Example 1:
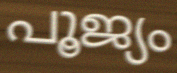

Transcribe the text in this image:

പൂജ്യം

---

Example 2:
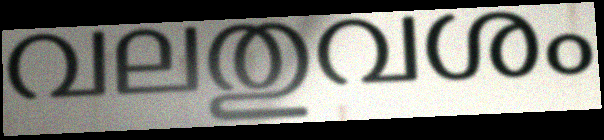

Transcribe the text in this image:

വലതുവശം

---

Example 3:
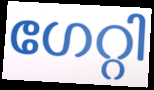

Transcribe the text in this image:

ഗേറ്റി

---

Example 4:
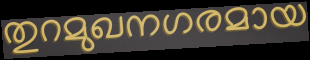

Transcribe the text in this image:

തുറമുഖനഗരമായ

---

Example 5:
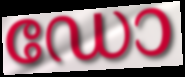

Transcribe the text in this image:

ഡോ